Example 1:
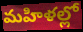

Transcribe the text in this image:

మహిళల్లో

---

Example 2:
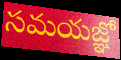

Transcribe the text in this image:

సమయజ్ఞో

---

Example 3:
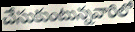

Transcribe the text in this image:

చేసుకుంటున్నవారిలో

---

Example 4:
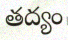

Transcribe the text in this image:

తద్యం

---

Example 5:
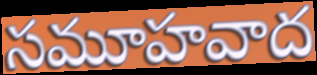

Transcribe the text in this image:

సమూహవాద